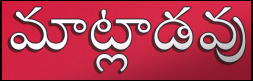
మాట్లాడవు